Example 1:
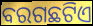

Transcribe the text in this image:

ବରଗଛଟିଏ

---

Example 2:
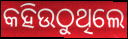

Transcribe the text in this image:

କହିଉଠୁଥିଲେ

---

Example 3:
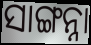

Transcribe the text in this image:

ସାଙ୍ଗନ୍ନା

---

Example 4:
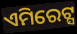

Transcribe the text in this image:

ଏମିରେଟ୍ସ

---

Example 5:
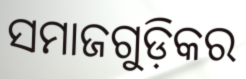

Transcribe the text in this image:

ସମାଜଗୁଡ଼ିକର